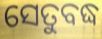
ସେତୁବଦ୍ଧ